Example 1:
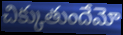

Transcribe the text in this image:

చిక్కుతుందేమో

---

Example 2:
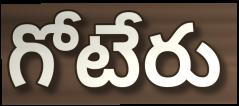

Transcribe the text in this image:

గోటేరు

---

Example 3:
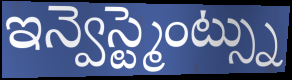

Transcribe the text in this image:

ఇన్వెస్ట్మెంట్స్ను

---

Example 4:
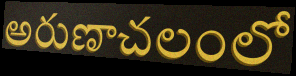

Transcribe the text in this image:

అరుణాచలంలో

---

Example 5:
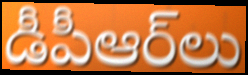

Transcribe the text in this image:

డీపీఆర్‌లు